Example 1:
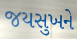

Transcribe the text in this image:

જયસુખને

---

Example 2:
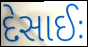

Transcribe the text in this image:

દેસાઈઃ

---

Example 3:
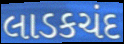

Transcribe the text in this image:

લાડકચંદ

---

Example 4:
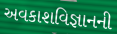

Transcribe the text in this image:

અવકાશવિજ્ઞાનની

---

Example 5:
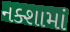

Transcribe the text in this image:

નક્શામાં